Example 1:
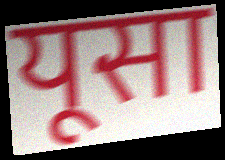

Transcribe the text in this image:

यूसा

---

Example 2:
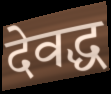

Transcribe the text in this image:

देवद्ध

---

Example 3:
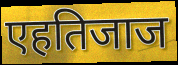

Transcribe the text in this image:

एहतिजाज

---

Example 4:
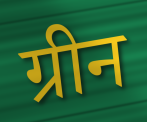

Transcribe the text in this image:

ग्रीन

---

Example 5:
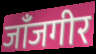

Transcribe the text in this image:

जाँजगीर